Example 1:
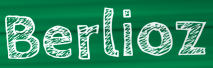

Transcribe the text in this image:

Berlioz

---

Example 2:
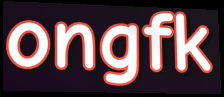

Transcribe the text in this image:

ongfk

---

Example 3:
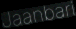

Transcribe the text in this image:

Jaanbari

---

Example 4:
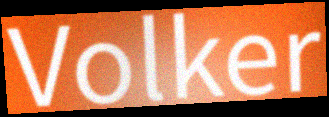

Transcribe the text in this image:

Volker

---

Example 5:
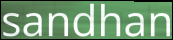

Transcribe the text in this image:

sandhan